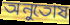
অনুতোষ